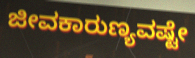
ಜೀವಕಾರುಣ್ಯವಷ್ಟೇ